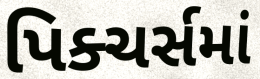
પિક્ચર્સમાં